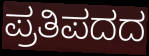
ಪ್ರತಿಪದದ